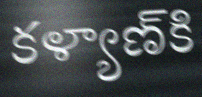
కళ్యాణ్‍కి